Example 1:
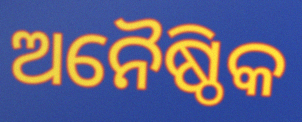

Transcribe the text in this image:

ଅନୈଷ୍ଠିକ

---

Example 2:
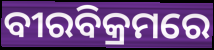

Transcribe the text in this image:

ବୀରବିକ୍ରମରେ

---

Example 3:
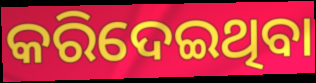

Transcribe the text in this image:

କରିଦେଇଥିବା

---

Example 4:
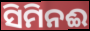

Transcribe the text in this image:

ସିମିନଈ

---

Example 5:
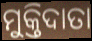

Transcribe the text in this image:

ମୁକ୍ତିଦାତା